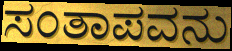
ಸಂತಾಪವನು